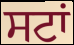
ਸਟਾਂ